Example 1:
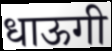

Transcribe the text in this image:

धाऊगी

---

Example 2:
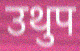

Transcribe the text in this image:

उथुप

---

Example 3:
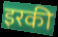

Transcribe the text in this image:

इरकी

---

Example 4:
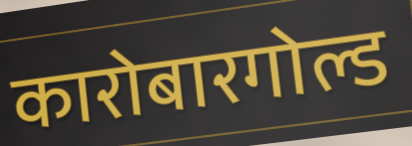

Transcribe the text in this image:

कारोबारगोल्ड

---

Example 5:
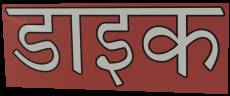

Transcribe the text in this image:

डाइक